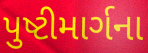
પુષ્ટીમાર્ગના